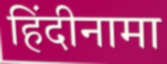
हिंदीनामा